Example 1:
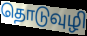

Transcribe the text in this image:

தொடுவுழி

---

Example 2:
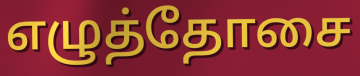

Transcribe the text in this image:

எழுத்தோசை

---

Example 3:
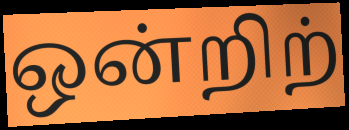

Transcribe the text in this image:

ஒன்றிற்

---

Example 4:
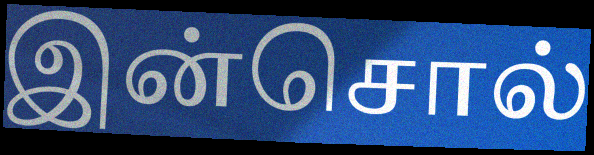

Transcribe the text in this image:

இன்சொல்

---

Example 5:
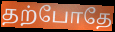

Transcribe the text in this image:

தற்போதே